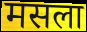
मसला